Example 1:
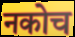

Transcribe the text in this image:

नकोच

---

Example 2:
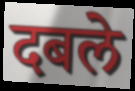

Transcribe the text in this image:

दबले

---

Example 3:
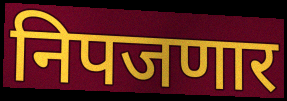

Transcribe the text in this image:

निपजणार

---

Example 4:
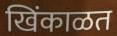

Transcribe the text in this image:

खिंकाळत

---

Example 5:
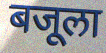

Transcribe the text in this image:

बजूला